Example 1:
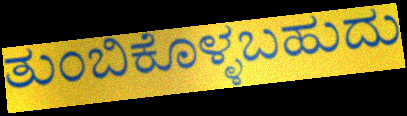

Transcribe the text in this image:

ತುಂಬಿಕೊಳ್ಳಬಹುದು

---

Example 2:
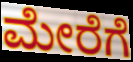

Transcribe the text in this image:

ಮೇರೆಗೆ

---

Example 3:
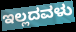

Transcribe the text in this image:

ಇಲ್ಲದವಳು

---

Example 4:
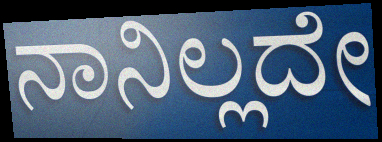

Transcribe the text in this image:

ನಾನಿಲ್ಲದೇ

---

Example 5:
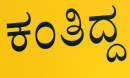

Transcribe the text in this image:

ಕಂತಿದ್ದ